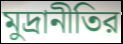
মুদ্রানীতির